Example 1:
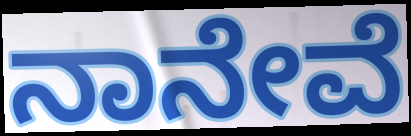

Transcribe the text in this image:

ನಾನೇವೆ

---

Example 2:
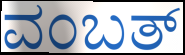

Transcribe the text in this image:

ವಂಬತ್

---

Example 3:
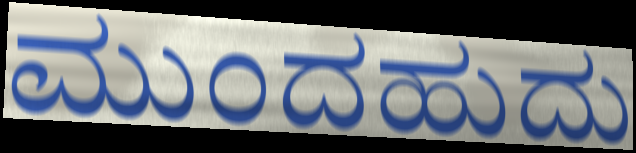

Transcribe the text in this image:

ಮುಂದಹುದು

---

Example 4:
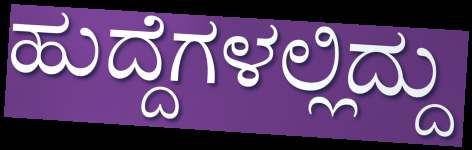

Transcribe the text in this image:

ಹುದ್ದೆಗಳಲ್ಲಿದ್ದು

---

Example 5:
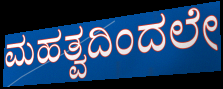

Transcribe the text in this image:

ಮಹತ್ವದಿಂದಲೇ